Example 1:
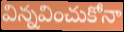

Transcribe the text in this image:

విన్నవించుకోనా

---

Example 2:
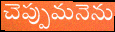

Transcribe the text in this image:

చెప్పుమనెను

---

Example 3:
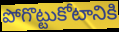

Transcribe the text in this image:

పోగొట్టుకోటానికి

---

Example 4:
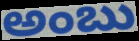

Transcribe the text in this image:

అంబు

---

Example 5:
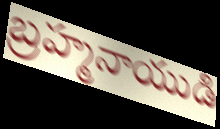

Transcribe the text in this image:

బ్రహ్మనాయుడి